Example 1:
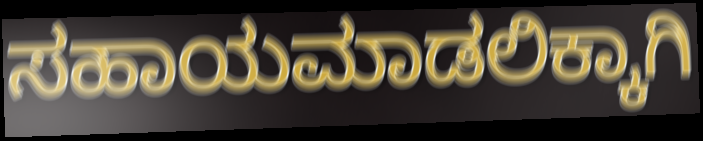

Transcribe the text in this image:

ಸಹಾಯಮಾಡಲಿಕ್ಕಾಗಿ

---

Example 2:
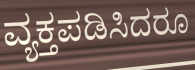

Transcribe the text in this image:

ವ್ಯಕ್ತಪಡಿಸಿದರೂ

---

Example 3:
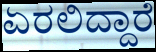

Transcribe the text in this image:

ಏರಲಿದ್ದಾರೆ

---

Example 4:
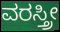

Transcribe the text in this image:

ವರಸ್ತ್ರೀ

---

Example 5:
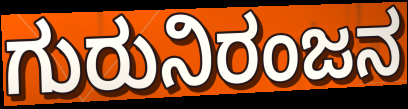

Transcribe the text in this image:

ಗುರುನಿರಂಜನ